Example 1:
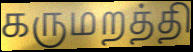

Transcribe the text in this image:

கருமறத்தி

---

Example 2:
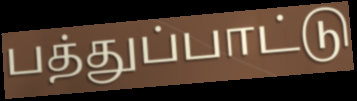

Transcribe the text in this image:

பத்துப்பாட்டு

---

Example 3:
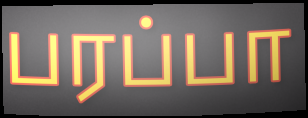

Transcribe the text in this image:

பரப்பா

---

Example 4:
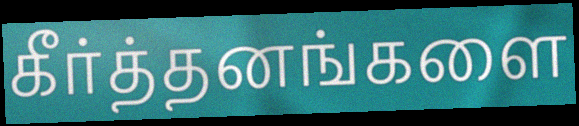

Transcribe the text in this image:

கீர்த்தனங்களை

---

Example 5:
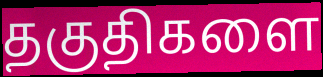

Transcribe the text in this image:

தகுதிகளை